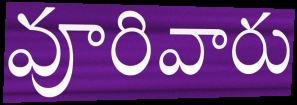
వూరివారు